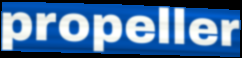
propeller